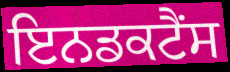
ਇਨਡਕਟੈਂਸ